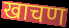
खाचण